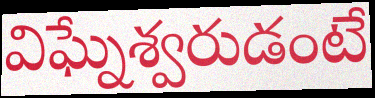
విఘ్నేశ్వరుడంటే